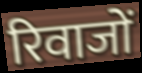
रिवाजों